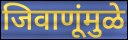
जिवाणूंमुळे